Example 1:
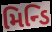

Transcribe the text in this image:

મિન્ડિ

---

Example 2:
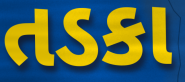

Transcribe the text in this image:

તડકા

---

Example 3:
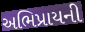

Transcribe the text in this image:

અભિપ્રાયની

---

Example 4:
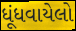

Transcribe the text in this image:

ધૂંધવાયેલો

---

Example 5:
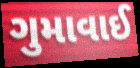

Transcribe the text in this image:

ગુમાવાઈ